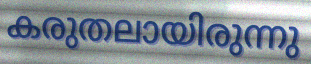
കരുതലായിരുന്നു